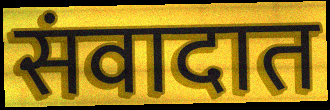
संवादात